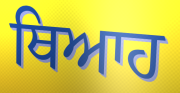
ਥਿਆਹ